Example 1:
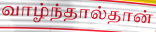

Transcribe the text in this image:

வாழ்ந்தால்தான்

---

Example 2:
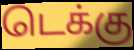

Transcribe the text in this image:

டெக்கு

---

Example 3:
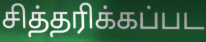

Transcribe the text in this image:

சித்தரிக்கப்பட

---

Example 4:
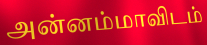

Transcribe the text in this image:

அன்னம்மாவிடம்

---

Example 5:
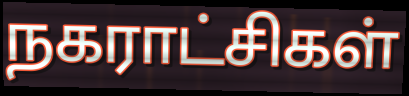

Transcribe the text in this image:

நகராட்சிகள்